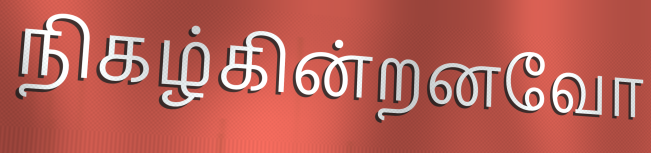
நிகழ்கின்றனவோ